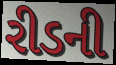
રીડની